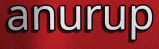
anurup